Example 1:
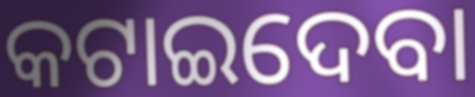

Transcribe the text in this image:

କଟାଇଦେବା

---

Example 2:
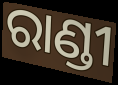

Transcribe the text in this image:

ରାଣ୍ଡୀ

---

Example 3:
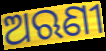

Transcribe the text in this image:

ଅଋଣୀ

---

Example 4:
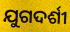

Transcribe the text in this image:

ଯୁଗଦର୍ଶୀ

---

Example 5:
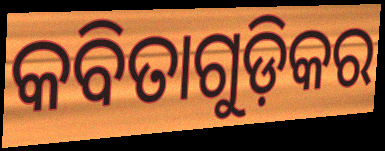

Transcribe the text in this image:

କବିତାଗୁଡ଼ିକର